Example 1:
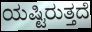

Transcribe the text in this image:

ಯಷ್ಟಿರುತ್ತದೆ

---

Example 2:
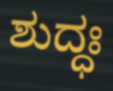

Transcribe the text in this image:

ಶುದ್ಧಃ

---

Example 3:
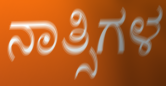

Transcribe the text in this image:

ನಾತ್ಸಿಗಳ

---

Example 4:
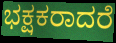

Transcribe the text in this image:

ಭಕ್ಷಕರಾದರೆ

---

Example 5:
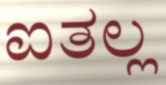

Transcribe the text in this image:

ಐತಲ್ಲ